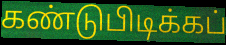
கண்டுபிடிக்கப்